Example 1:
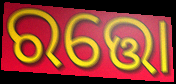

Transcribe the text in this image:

ରତ୍ତୋ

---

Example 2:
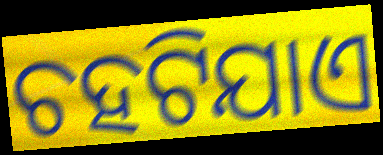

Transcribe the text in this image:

ଚହଟିଯାଏ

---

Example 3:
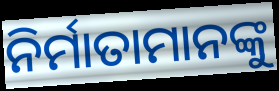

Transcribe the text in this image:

ନିର୍ମାତାମାନଙ୍କୁ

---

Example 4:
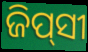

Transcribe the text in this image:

ଜିପ୍‍ସୀ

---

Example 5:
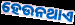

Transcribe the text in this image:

ହେଉନଥାଏ